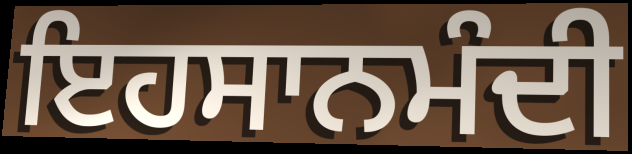
ਇਹਸਾਨਮੰਦੀ